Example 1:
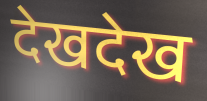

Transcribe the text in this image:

देखदेख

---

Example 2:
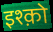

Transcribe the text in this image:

इश्क़ो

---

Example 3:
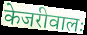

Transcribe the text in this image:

केजरीवालः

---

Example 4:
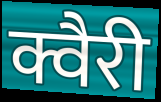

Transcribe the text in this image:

क्वैरी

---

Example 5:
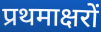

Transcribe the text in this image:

प्रथमाक्षरों